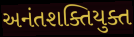
અનંતશક્તિયુક્ત